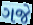
ગજે